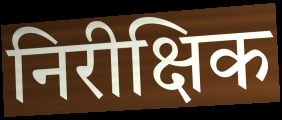
निरीक्षिक